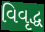
વિવૃદ્ધ